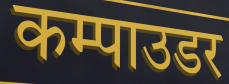
कम्पाउडर